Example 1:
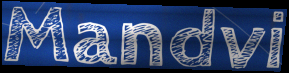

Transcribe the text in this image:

Mandvi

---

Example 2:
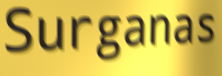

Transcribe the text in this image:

Surganas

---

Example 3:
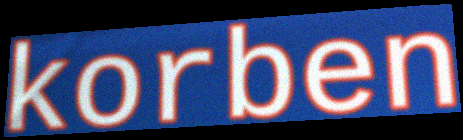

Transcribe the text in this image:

korben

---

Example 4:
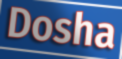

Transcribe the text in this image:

Dosha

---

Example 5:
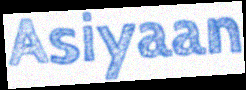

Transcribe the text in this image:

Asiyaan